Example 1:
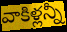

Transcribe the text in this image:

వాకిళ్లన్నీ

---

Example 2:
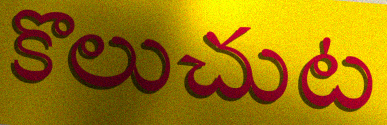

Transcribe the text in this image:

కొలుచుట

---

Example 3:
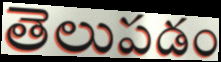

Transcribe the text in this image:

తెలుపడం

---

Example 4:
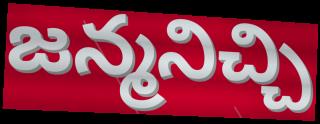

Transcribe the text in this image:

జన్మనిచ్చి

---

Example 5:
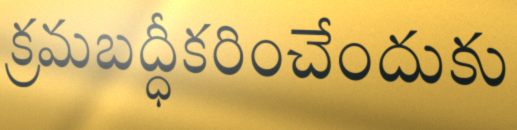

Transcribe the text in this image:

క్రమబద్ధీకరించేందుకు